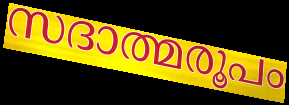
സദാത്മരൂപം